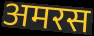
अमरस